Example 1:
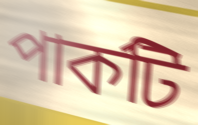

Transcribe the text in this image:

পার্কটি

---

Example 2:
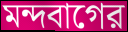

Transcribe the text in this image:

মন্দবাগের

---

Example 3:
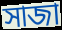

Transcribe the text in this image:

সাজা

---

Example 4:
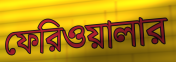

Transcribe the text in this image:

ফেরিওয়ালার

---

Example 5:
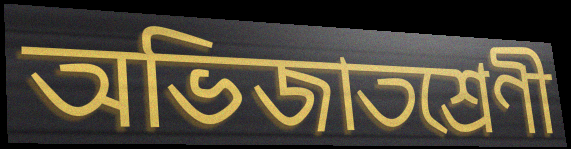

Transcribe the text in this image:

অভিজাতশ্রেণী